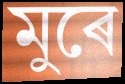
মুৰে